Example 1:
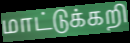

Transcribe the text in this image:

மாட்டுக்கறி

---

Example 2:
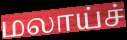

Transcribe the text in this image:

மலாய்ச்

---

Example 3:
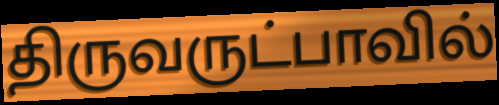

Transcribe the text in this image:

திருவருட்பாவில்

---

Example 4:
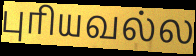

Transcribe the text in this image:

புரியவல்ல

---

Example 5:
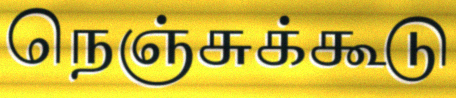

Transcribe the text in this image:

நெஞ்சுக்கூடு